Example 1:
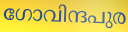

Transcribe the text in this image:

ഗോവിന്ദപുര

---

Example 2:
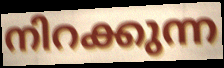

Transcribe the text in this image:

നിറക്കുന്ന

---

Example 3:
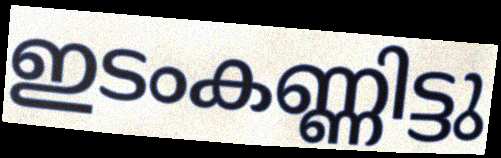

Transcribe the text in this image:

ഇടംകണ്ണിട്ടു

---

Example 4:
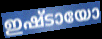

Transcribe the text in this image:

ഇഷ്ടായോ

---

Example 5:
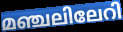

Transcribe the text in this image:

മഞ്ചലിലേറി